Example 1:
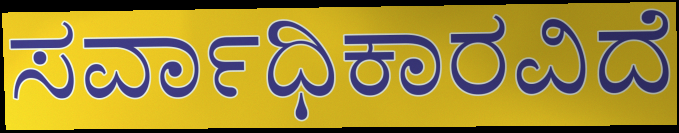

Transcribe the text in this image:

ಸರ್ವಾಧಿಕಾರವಿದೆ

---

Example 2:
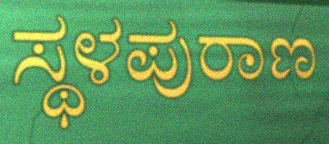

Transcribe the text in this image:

ಸ್ಥಳಪುರಾಣ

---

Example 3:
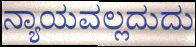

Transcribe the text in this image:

ನ್ಯಾಯವಲ್ಲದುದು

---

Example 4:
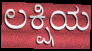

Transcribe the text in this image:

ಲಕ್ಷಿಯ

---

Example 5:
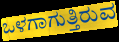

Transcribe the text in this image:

ಒಳಗಾಗುತ್ತಿರುವ